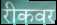
रीकवर